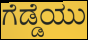
ಗೆಡ್ಡೆಯು